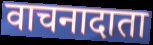
वाचनादाता